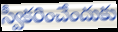
స్వీకరించేందుకు